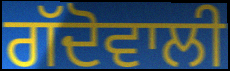
ਗੱਦੋਵਾਲੀ